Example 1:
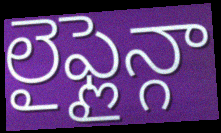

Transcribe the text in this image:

లైఫ్లైన్గా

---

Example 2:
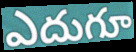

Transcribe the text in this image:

ఎదుగూ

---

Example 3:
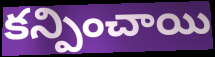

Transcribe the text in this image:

కన్పించాయి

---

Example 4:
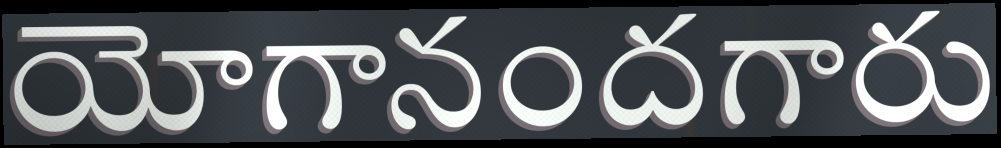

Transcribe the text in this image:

యోగానందగారు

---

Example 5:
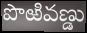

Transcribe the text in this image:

పొఱివణ్డు